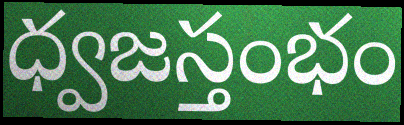
ధ్వజస్తంభం